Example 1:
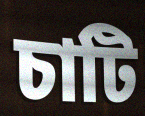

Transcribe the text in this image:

চাটি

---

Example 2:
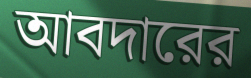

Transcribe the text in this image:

আবদারের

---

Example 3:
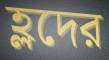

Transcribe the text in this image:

হ্লদের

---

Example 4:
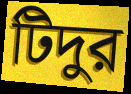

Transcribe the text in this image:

টিদুর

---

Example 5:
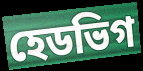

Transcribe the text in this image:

হেডভিগ